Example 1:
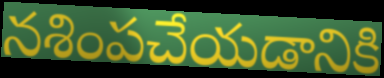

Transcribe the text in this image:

నశింపచేయడానికి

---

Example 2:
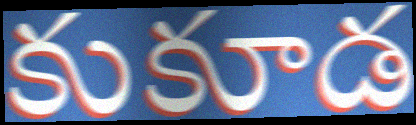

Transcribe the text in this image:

కుకూడ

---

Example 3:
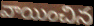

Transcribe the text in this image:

వాయించిన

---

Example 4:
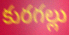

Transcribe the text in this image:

కురగల్లు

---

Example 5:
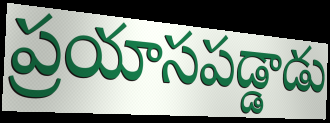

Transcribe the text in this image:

ప్రయాసపడ్డాడు